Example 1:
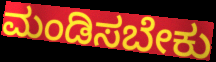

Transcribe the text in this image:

ಮಂಡಿಸಬೇಕು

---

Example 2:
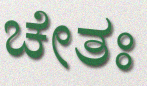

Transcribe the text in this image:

ಚೇತಃ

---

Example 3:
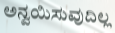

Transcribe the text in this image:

ಅನ್ವಯಿಸುವುದಿಲ್ಲ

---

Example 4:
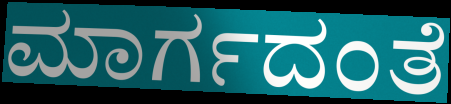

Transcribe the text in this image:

ಮಾರ್ಗದಂತೆ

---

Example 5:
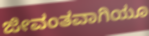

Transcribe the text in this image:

ಜೀವಂತವಾಗಿಯೂ